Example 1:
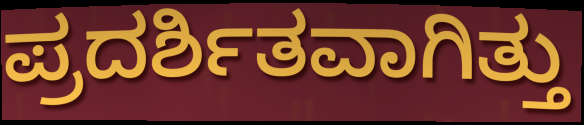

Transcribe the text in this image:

ಪ್ರದರ್ಶಿತವಾಗಿತ್ತು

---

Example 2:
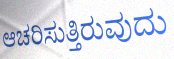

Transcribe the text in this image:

ಆಚರಿಸುತ್ತಿರುವುದು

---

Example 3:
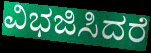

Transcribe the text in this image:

ವಿಭಜಿಸಿದರೆ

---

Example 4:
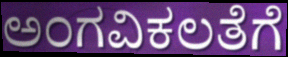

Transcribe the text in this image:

ಅಂಗವಿಕಲತೆಗೆ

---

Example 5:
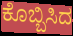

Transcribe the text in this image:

ಕೊಬ್ಬಿಸಿದ